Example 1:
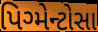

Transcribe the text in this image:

પિગ્મેન્ટોસા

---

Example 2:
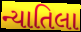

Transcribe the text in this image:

ન્યાતિલા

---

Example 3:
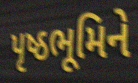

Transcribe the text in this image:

પૃષ્ઠભૂમિને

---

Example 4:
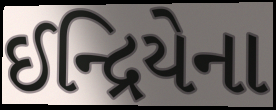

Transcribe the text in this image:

ઈન્દ્રિયેના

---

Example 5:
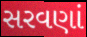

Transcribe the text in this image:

સરવણાં